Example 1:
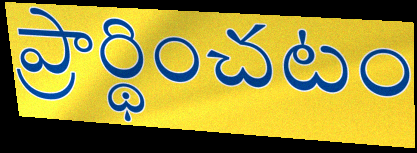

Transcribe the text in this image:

ప్రార్థించటం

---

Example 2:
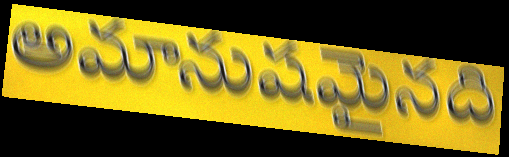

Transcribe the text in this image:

అమానుషమైనది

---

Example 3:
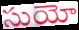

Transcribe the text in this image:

సుయో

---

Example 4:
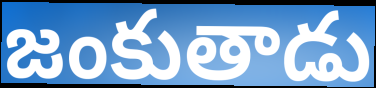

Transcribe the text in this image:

జంకుతాడు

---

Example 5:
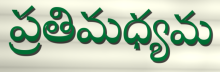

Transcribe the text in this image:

ప్రతిమధ్యమ